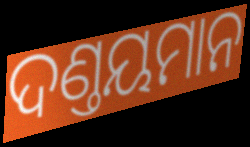
ଦଣ୍ତୟମାନ